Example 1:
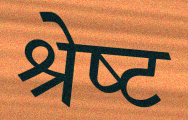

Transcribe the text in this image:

श्रेष्‍ट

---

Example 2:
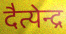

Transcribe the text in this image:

दैत्येन्द्र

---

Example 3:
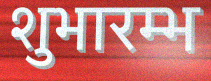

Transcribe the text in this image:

शुभारम्भ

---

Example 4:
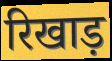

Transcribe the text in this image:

रिखाड़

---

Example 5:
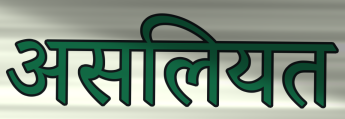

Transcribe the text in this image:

असलियत